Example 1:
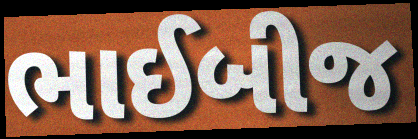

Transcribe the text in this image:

ભાઈબીજ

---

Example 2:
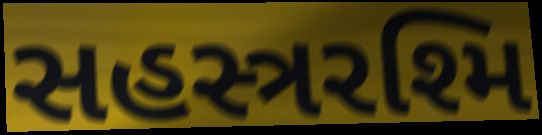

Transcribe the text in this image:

સહસ્ત્રરશ્મિ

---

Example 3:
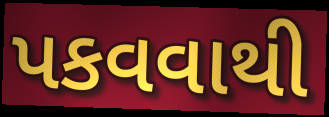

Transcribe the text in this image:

પકવવાથી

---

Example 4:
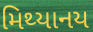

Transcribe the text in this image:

મિથ્યાનય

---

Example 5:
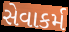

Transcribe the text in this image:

સેવાકર્મ